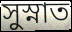
সুস্নাত